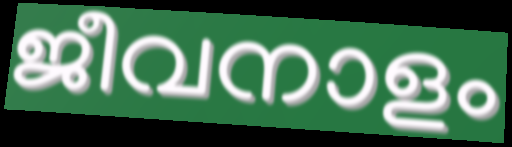
ജീവനാളം